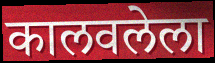
कालवलेला